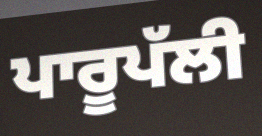
ਪਾਰੂਪੱਲੀ